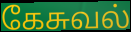
கேசுவல்